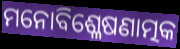
ମନୋବିଶ୍ଳେଷଣାତ୍ମକ